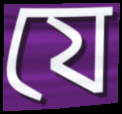
যে